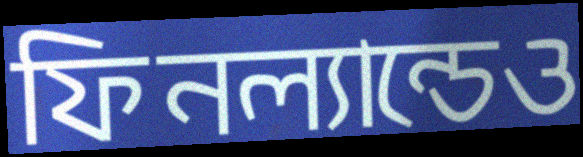
ফিনল্যান্ডেও